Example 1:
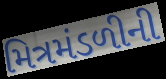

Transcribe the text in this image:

મિત્રમંડળીની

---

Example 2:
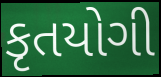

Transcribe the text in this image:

કૃતયોગી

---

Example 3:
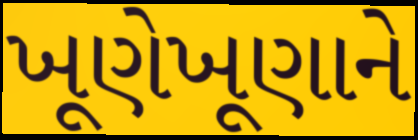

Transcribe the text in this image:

ખૂણેખૂણાને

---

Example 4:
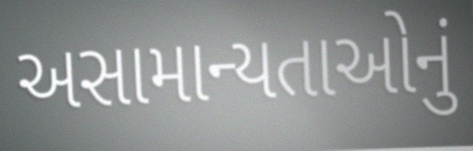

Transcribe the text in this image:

અસામાન્યતાઓનું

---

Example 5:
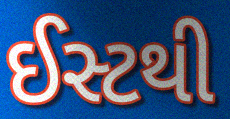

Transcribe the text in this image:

ઈસ્ટથી